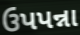
ઉપપન્ના